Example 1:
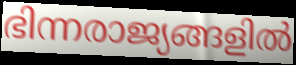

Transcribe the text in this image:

ഭിന്നരാജ്യങ്ങളിൽ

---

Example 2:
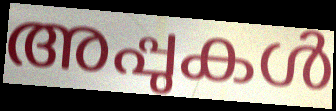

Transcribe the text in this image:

അപ്പുകൾ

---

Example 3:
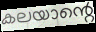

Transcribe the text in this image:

കലയാന്റെ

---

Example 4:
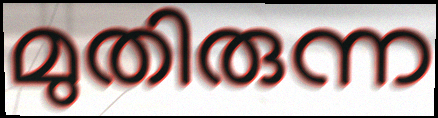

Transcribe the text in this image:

മുതിരുന്ന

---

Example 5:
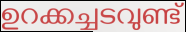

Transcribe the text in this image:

ഉറക്കച്ചടവുണ്ട്